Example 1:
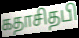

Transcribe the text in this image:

கதாசிதபி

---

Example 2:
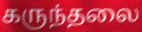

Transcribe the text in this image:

கருந்தலை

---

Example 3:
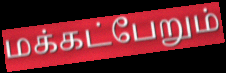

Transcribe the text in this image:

மக்கட்பேறும்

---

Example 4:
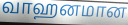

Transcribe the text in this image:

வாஹனமான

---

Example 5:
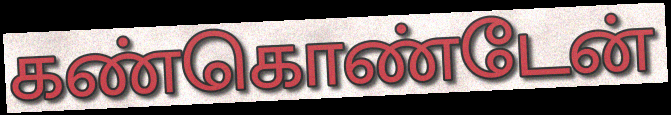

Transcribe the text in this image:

கண்கொண்டேன்